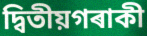
দ্বিতীয়গৰাকী